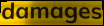
damages